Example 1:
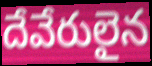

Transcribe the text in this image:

దేవేరులైన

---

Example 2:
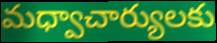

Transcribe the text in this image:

మధ్వాచార్యులకు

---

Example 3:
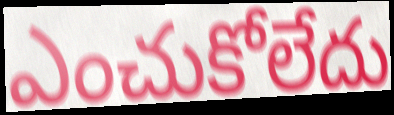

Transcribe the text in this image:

ఎంచుకోలేదు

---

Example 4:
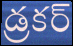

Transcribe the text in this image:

డ్రకర్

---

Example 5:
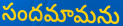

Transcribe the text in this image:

సందమామను